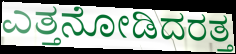
ಎತ್ತನೋಡಿದರತ್ತ